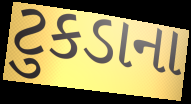
ટુકડાના